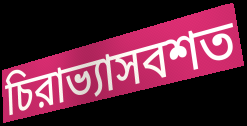
চিরাভ্যাসবশত